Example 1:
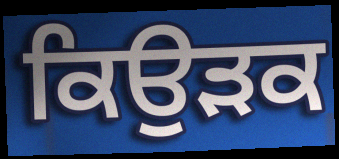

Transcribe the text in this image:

ਕਿਉੜਕ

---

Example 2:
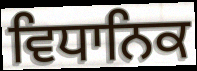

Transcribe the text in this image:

ਵਿਧਾਨਿਕ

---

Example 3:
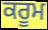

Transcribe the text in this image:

ਕਰੂਮ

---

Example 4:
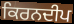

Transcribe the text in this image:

ਕਿਰਨਦੀਪ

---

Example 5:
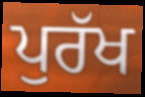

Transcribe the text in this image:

ਪੁਰੱਖ